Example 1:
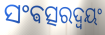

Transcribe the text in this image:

ସଂଵତ୍ସରଦ୍ଵୟଂ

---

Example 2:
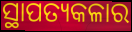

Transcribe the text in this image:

ସ୍ଥାପତ୍ୟକଳାର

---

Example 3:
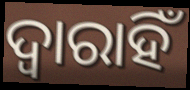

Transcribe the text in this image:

ଦ୍ୱାରାହିଁ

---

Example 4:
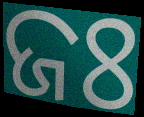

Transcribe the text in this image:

ଜଃ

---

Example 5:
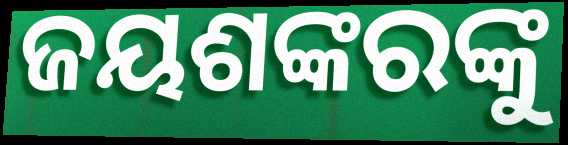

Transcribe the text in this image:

ଜୟଶଙ୍କରଙ୍କୁ